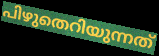
പിഴുതെറിയുന്നത്